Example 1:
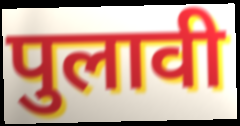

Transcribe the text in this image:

पुलावी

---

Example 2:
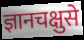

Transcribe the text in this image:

ज्ञानचक्षुसे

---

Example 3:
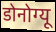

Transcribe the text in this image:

डोनोग्यू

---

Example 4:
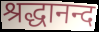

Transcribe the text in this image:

श्रद्धानन्द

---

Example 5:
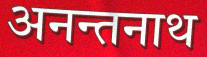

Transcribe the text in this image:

अनन्तनाथ